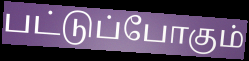
பட்டுப்போகும்